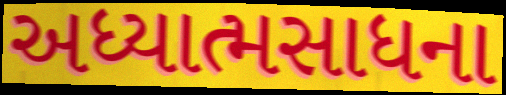
અધ્યાત્મસાધના